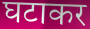
घटाकर